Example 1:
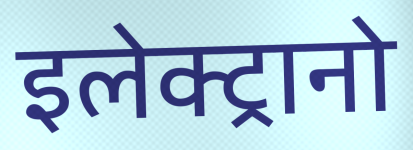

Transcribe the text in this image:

इलेक्ट्रानो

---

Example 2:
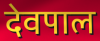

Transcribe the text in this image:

देवपाल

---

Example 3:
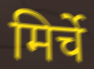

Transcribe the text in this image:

मिर्चे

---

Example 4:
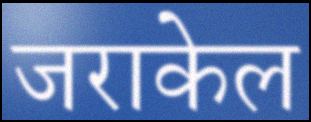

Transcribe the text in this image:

जराकेल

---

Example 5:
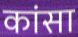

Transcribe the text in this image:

कांसा